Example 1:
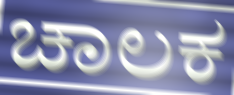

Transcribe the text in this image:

ಚಾಲಕ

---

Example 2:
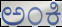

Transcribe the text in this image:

ಅಂಕಿ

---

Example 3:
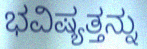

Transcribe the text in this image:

ಭವಿಷ್ಯತ್ತನ್ನು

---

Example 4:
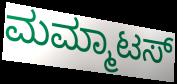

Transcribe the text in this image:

ಮಮ್ಮಾಟಸ್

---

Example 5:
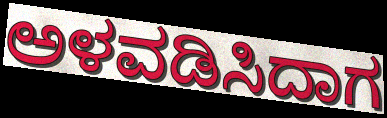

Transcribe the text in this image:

ಅಳವಡಿಸಿದಾಗ